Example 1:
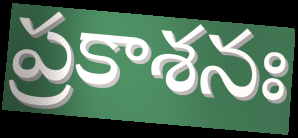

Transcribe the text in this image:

ప్రకాశనః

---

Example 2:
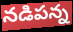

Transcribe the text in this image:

నడిపన్న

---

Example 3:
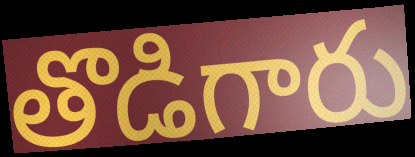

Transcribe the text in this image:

తొడిగారు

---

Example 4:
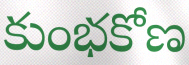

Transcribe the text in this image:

కుంభకోణ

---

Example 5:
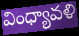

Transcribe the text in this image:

వింధ్యావళి